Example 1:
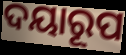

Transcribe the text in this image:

ଦୟାରୂପ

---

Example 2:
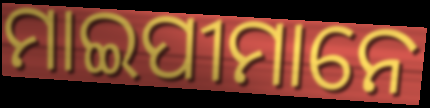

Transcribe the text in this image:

ମାଇପୀମାନେ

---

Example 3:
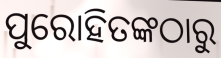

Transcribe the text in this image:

ପୁରୋହିତଙ୍କଠାରୁ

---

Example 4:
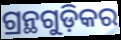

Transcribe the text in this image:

ଗ୍ରନ୍ଥଗୁଡ଼ିକର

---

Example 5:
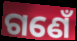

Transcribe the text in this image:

ଗଣେଁ